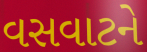
વસવાટને